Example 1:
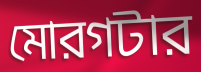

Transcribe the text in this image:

মোরগটার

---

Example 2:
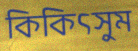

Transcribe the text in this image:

কিকিৎসুম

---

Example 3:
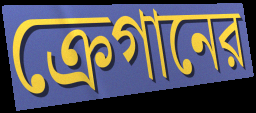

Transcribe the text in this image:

ক্রেগানের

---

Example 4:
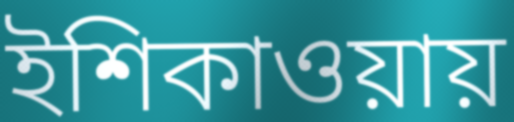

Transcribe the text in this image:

ইশিকাওয়ায়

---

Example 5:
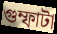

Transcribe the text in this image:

গুম্ফাটা